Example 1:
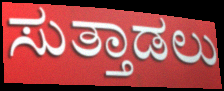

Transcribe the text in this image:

ಸುತ್ತಾಡಲು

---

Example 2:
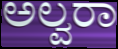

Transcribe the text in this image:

ಅಲ್ವರಾ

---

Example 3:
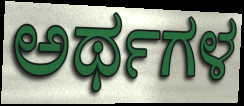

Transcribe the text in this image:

ಅರ್ಥಗಳ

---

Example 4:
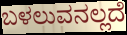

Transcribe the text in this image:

ಬಳಲುವನಲ್ಲದೆ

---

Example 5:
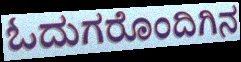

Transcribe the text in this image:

ಓದುಗರೊಂದಿಗಿನ